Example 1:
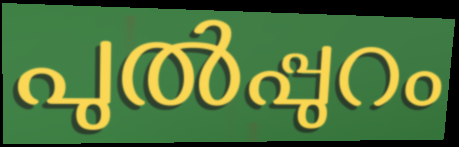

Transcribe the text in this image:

പുൽപ്പുറം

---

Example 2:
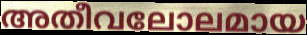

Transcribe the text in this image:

അതീവലോലമായ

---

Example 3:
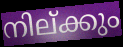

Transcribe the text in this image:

നില്ക്കും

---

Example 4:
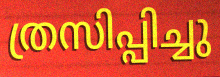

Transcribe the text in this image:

ത്രസിപ്പിച്ചു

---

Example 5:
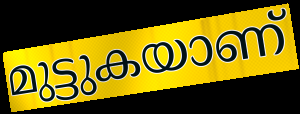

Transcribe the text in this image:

മുട്ടുകയാണ്